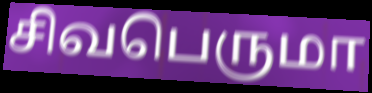
சிவபெருமா